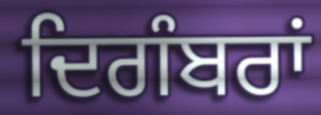
ਦਿਗੰਬਰਾਂ